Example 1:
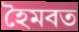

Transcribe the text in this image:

হৈমবত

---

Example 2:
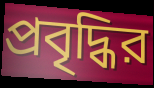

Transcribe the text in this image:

প্রবৃদ্ধির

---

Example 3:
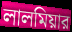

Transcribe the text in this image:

লালমিয়ার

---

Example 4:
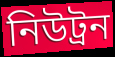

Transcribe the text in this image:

নিউট্রন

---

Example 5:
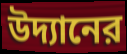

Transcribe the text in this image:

উদ্যানের